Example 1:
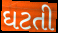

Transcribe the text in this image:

ઘટતી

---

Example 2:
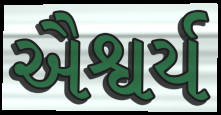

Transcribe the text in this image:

ઐશ્વર્ય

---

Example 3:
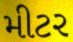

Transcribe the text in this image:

મીટર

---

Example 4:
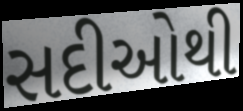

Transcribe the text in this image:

સદીઓથી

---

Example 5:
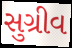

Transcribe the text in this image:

સુગ્રીવ